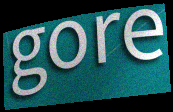
gore